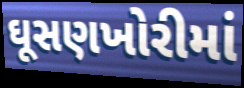
ઘૂસણખોરીમાં